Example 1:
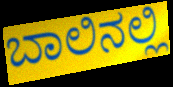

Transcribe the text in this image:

ಬಾಲಿನಲ್ಲಿ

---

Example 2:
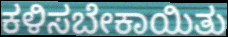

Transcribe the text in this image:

ಕಳಿಸಬೇಕಾಯಿತು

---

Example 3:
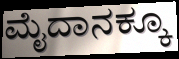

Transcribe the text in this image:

ಮೈದಾನಕ್ಕೂ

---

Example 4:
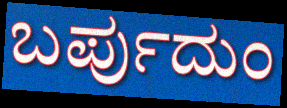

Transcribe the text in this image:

ಬರ್ಪುದುಂ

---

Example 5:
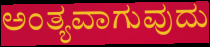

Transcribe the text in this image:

ಅಂತ್ಯವಾಗುವುದು